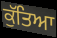
ਕੁੱਤਿਆ